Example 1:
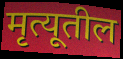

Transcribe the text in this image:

मृत्यूतील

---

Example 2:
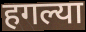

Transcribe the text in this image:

हगल्या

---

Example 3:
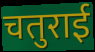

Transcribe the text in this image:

चतुराई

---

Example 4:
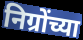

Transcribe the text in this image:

निग्रोंच्या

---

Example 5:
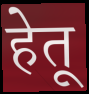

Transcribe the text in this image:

हेतू